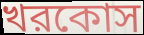
খরকোস